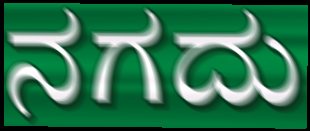
ನಗದು